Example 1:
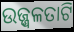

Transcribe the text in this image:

ଉଜ୍ଜ୍ୱଳତାଟି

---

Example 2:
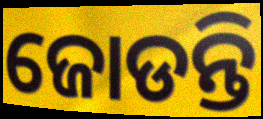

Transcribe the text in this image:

ଜୋଡନ୍ତି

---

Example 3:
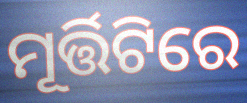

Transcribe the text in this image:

ମୂର୍ତ୍ତିଟିରେ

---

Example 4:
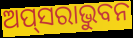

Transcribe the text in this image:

ଅପ୍‍ସରାଭୁବନ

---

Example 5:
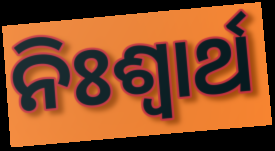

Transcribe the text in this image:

ନିଃଶ୍ୱାର୍ଥ